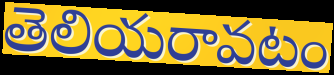
తెలియరావటం